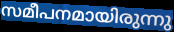
സമീപനമായിരുന്നു